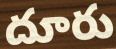
దూరు